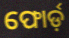
ଫୋର୍ଡ଼